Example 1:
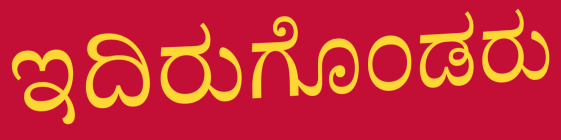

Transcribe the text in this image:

ಇದಿರುಗೊಂಡರು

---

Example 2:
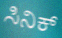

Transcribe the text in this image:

ಸಿನಿಕ್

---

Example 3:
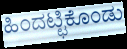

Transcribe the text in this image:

ಹಿಂದಟ್ಟಿಕೊಂಡು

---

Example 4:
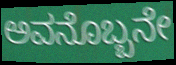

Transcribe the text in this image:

ಅವನೊಬ್ಬನೇ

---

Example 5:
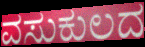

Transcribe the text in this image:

ವಸುಕುಲದ